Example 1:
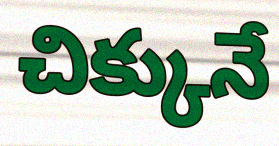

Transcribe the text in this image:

చిక్కునే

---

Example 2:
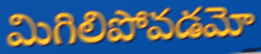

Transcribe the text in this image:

మిగిలిపోవడమో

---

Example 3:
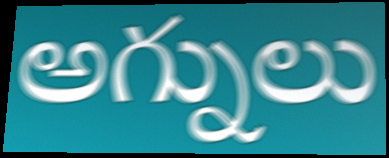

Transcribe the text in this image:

అగ్నులు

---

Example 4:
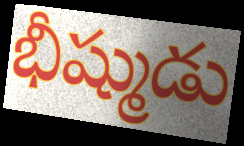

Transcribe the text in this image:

భీష్ముడు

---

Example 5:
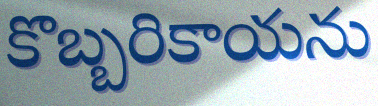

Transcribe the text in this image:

కొబ్బరికాయను